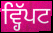
ਵ੍ਹਿੱਪਟ